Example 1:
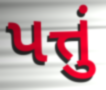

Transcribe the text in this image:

પત્તું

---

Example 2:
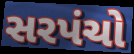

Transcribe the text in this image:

સરપંચો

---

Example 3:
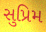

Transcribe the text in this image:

સુપ્રિમ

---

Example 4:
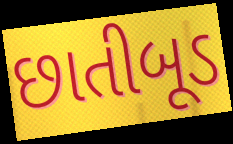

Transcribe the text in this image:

છાતીબૂડ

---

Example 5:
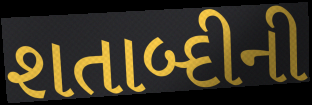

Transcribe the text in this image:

શતાબ્દીની